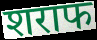
शराफ